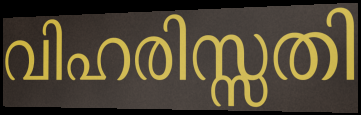
വിഹരിസ്സതി